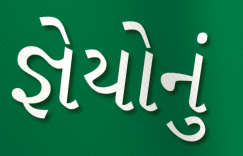
જ્ઞેયોનું